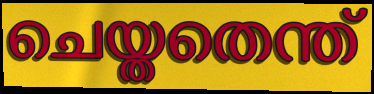
ചെയ്തതെന്ത്